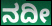
ನದೀ